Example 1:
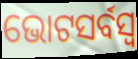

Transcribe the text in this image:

ଭୋଟସର୍ବସ୍ବ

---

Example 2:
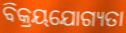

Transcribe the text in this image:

ବିକ୍ରୟଯୋଗ୍ୟତା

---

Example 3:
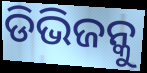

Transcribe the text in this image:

ଡିଭିଜନ୍କୁ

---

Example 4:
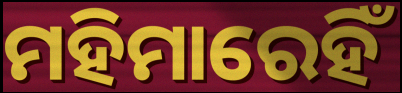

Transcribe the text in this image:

ମହିମାରେହିଁ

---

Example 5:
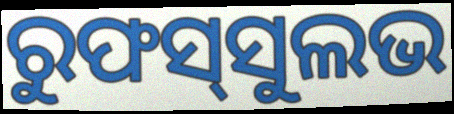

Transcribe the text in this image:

ରୁଫସ୍‌ସୁଲଭ